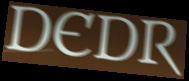
DEDR